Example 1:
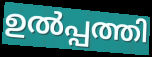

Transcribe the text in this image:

ഉൽപ്പത്തി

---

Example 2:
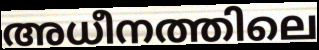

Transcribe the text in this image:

അധീനത്തിലെ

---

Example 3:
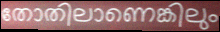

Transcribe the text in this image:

തോതിലാണെങ്കിലും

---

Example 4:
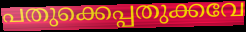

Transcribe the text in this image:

പതുക്കെപ്പതുക്കവേ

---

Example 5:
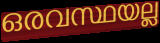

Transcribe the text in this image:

ഒരവസ്ഥയല്ല